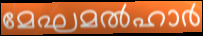
മേഘമൽഹാർ